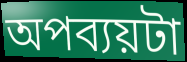
অপব্যয়টা